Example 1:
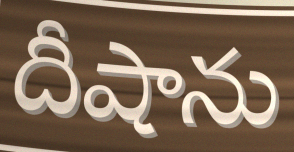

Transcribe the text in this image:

దీషాను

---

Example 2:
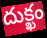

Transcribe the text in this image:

దుక్ఖం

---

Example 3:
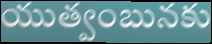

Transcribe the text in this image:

యుత్వంబునకు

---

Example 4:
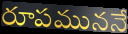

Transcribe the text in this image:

రూపముననే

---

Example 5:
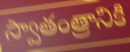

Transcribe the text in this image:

స్వాతంత్రానికి